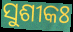
ସୁଶୀକଃ